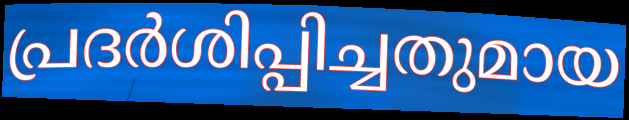
പ്രദർശിപ്പിച്ചതുമായ